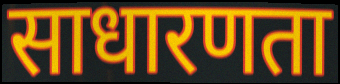
साधारणता